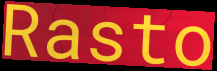
Rasto